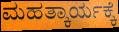
ಮಹತ್ಕಾರ್ಯಕ್ಕೆ